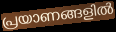
പ്രയാണങ്ങളിൽ